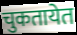
चुकतायेत